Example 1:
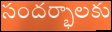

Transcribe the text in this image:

సందర్భాలకు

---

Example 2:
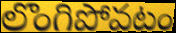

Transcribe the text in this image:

లొంగిపోవటం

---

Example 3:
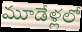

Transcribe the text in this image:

మూడేళ్లలో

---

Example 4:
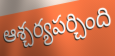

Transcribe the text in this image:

ఆశ్చర్యపర్చింది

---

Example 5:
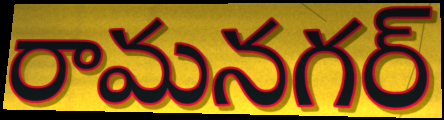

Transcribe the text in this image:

రామనగర్